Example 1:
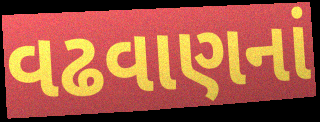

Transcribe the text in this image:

વઢવાણનાં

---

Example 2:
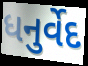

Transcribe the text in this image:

ધનુર્વેદ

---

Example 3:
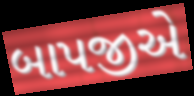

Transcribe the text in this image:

બાપજીએ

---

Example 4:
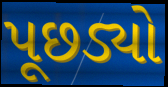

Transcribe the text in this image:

પૂછડ્યો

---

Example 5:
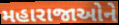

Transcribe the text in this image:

મહારાજાઓને